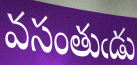
వసంతుఁడు